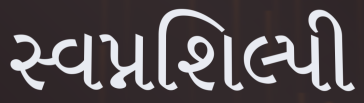
સ્વપ્નશિલ્પી